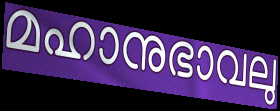
മഹാനുഭാവലു